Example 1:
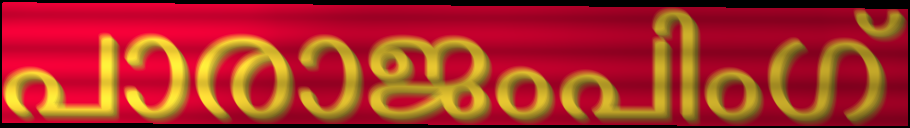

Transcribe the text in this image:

പാരാജംപിംഗ്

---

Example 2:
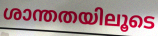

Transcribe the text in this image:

ശാന്തതയിലൂടെ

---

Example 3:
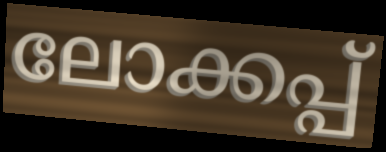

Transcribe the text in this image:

ലോക്കപ്പ്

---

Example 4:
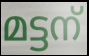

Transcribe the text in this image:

മട്ടന്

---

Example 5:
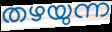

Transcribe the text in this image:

തഴയുന്ന